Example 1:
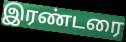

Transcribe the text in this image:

இரண்டரை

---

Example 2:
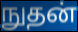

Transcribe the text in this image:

நுதன்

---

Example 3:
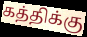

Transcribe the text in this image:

கத்திக்கு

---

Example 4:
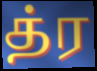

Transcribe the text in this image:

த்ர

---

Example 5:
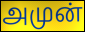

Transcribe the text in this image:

அமுன்